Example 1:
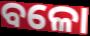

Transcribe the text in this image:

ବଳୋ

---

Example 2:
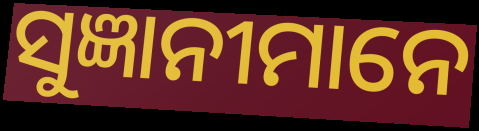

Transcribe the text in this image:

ସୁଜ୍ଞାନୀମାନେ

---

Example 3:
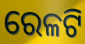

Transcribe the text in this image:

ରେଳଟି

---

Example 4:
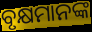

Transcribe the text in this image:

ବୃକ୍ଷମାନଙ୍କ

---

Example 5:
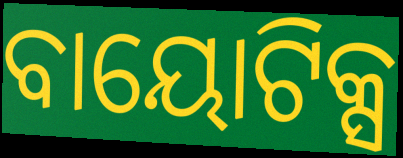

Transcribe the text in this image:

ବାୟୋଟିକ୍ସ